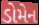
ડોમેન